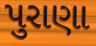
પુરાણા